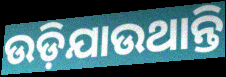
ଉଡ଼ିଯାଉଥାନ୍ତି